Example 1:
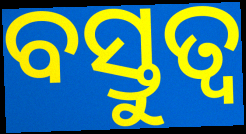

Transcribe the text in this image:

ବସ୍ତୁତ୍ବ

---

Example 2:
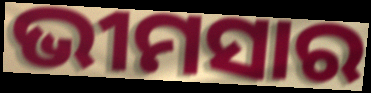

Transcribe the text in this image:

ଭୀମସାର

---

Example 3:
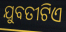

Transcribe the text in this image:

ଯୁବତୀଟିଏ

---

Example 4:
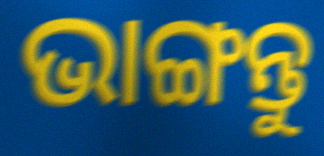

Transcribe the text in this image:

ଭାଙ୍ଗନ୍ତୁ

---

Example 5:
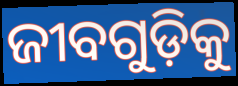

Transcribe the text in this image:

ଜୀବଗୁଡ଼ିକୁ